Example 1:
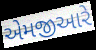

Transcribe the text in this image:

એમજીઆરે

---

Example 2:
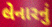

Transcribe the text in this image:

લેનારનું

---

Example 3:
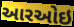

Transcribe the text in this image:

આરઓઇ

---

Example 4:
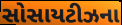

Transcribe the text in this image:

સોસાયટીઝના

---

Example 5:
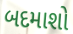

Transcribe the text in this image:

બદમાશો